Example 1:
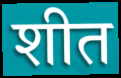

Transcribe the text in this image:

शीत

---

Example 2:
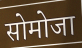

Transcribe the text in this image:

सोमोजा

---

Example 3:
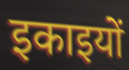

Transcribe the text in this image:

इकाइयों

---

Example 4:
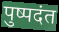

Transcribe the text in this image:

पुष्पदंत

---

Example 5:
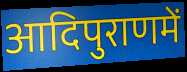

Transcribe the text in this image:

आदिपुराणमें